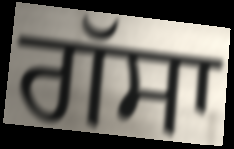
ਗੱਸਾ